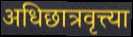
अधिछात्रवृत्त्या